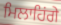
ਮਿਲਾਹਿਂਗੇ